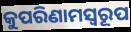
କୁପରିଣାମସ୍ୱରୂପ